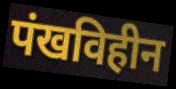
पंखविहीन